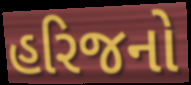
હરિજનો